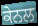
ਕੇਨਲ